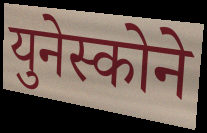
युनेस्कोने